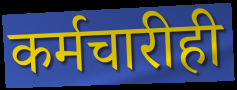
कर्मचारीही